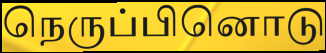
நெருப்பினொடு